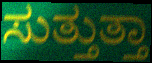
ಸುತ್ತುತ್ತಾ